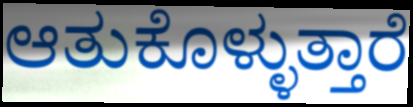
ಆತುಕೊಳ್ಳುತ್ತಾರೆ